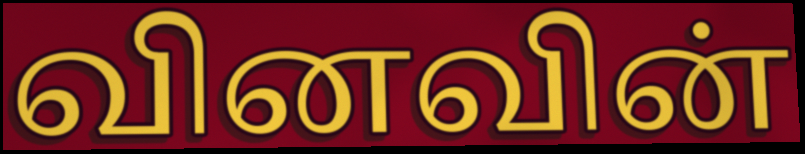
வினவின்